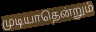
முடியாதென்றும்